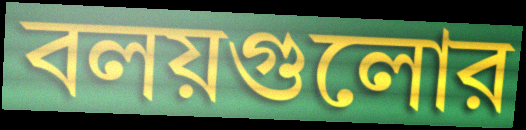
বলয়গুলোর